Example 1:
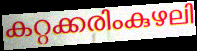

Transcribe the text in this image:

കറ്റക്കരിംകുഴലി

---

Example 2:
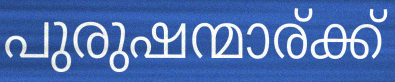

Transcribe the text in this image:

പുരുഷന്മാര്ക്ക്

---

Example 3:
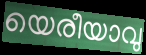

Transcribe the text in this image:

യെരീയാവു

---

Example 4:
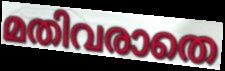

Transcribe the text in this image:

മതിവരാതെ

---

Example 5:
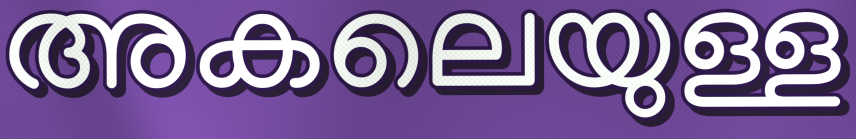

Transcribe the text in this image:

അകലെയുള്ള